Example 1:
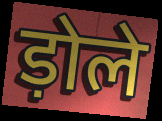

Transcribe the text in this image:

ड़ोले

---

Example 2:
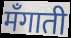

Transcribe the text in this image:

मँगाती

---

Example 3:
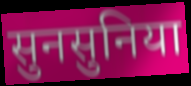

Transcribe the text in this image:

सुनसुनिया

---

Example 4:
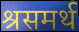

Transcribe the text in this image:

श्रसमर्थ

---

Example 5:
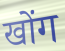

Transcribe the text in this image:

खोंग